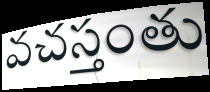
వచస్తంతు